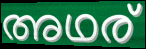
അഥര്